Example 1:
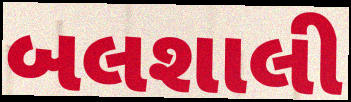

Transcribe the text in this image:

બલશાલી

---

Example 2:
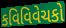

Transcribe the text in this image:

કવિવિવેચકો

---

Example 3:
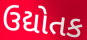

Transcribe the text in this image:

ઉદ્યોતક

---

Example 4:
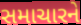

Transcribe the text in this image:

સમાચારને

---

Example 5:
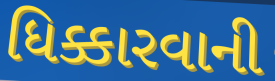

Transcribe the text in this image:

ધિક્કારવાની